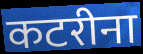
कटरीना